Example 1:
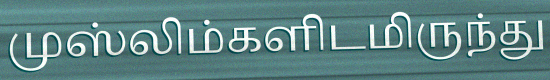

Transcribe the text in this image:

முஸ்லிம்களிடமிருந்து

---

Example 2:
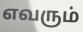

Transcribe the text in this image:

எவரும்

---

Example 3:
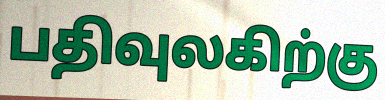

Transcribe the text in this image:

பதிவுலகிற்கு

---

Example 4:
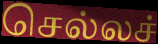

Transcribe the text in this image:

செல்லச்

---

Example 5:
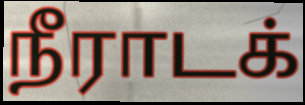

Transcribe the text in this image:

நீராடக்